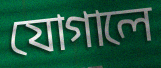
যোগালে